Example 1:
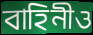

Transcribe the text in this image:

বাহিনীও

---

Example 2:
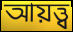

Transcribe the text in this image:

আয়ত্ত্ব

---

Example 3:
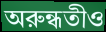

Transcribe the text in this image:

অরুন্ধতীও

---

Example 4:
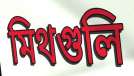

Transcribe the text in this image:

মিথগুলি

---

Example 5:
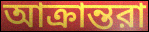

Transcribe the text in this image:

আক্রান্তরা